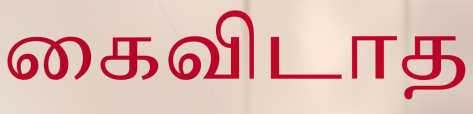
கைவிடாத